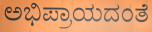
ಅಭಿಪ್ರಾಯದಂತೆ